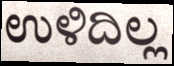
ಉಳಿದಿಲ್ಲ